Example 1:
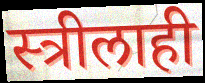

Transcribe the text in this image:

स्त्रीलाही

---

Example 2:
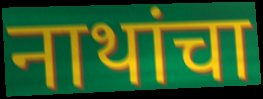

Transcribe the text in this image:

नाथांचा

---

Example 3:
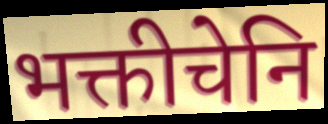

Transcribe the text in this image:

भक्तीचेनि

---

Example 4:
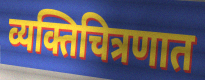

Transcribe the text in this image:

व्यक्तिचित्रणात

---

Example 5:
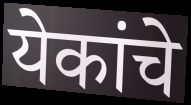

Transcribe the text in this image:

येकांचे